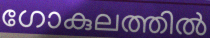
ഗോകുലത്തിൽ